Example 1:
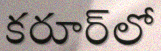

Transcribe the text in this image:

కరూర్‌లో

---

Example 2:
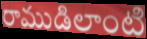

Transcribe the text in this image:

రాముడిలాంటి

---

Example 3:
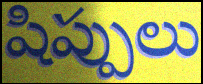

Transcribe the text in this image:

షిప్పులు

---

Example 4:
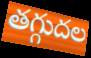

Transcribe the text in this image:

తగ్గుదల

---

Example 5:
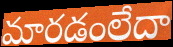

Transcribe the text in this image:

మారడంలేదా